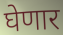
घेणार